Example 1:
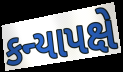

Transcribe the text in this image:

કન્યાપક્ષે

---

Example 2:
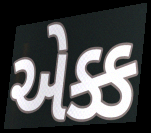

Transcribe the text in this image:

એક્ક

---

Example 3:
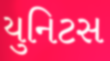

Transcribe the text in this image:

યુનિટસ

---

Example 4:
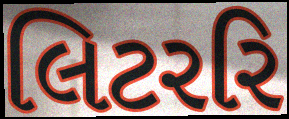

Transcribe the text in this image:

લિટરરિ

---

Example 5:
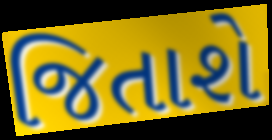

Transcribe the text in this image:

જિતાશે